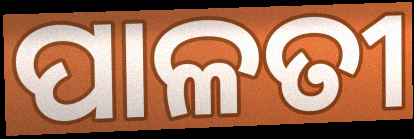
ପାଳତୀ